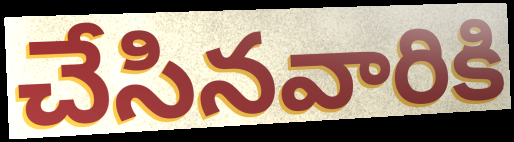
చేసినవారికి